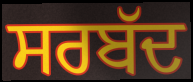
ਸਰਬੱਦ